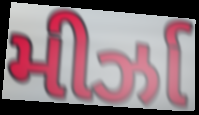
મીર્ઝા